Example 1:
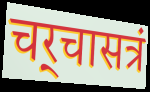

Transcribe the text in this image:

चर्चासत्रं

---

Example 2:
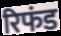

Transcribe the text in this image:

रिफंड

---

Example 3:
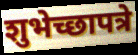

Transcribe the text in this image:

शुभेच्छापत्रे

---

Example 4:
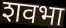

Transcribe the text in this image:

शवभा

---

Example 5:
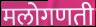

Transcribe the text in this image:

मलोगणती